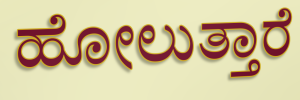
ಹೋಲುತ್ತಾರೆ